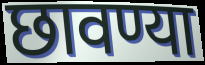
छावण्या